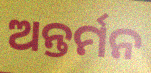
ଅନ୍ତର୍ମନ